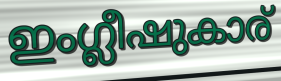
ഇംഗ്ലീഷുകാര്